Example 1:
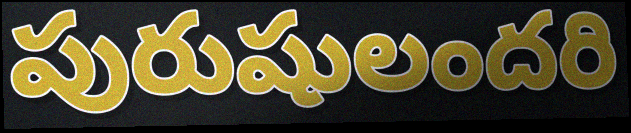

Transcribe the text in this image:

పురుషులందరి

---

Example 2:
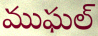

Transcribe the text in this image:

ముఘల్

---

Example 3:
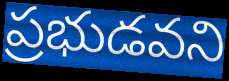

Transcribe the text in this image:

ప్రభుడవని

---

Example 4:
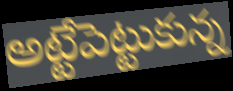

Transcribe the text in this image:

అట్టేపెట్టుకున్న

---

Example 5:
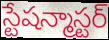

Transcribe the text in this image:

స్టేషన్మాస్టర్